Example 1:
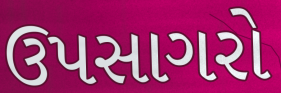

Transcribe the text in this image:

ઉપસાગરો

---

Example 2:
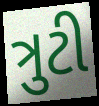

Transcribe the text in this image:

ત્રુટી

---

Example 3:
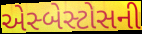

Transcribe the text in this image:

એસ્બેસ્ટોસની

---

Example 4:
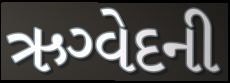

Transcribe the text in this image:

ઋગ્વેદની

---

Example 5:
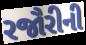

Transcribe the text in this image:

રજૌરીની